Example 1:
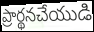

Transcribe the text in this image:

ప్రార్థనచేయుడి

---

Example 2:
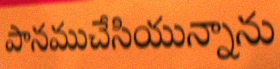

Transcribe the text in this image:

పానముచేసియున్నాను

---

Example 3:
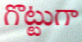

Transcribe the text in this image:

గొట్టుగా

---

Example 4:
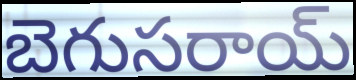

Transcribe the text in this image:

బెగుసరాయ్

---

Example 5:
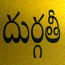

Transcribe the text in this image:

దుర్గతీ